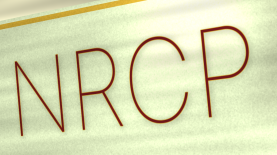
NRCP